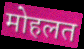
मोहलत